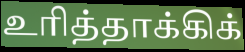
உரித்தாக்கிக்